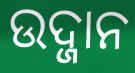
ଉଦ୍ଜାନ